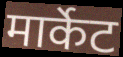
मार्केट